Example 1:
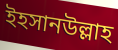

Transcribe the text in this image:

ইহসানউল্লাহ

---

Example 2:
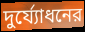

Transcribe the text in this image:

দুর্য্যোধনের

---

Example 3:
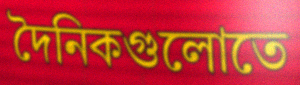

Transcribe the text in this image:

দৈনিকগুলোতে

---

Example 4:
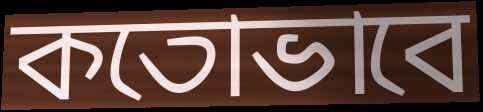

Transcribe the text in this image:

কতোভাবে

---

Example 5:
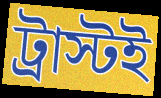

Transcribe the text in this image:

ট্রাস্টই